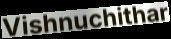
Vishnuchithar